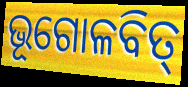
ଭୂଗୋଳବିତ୍